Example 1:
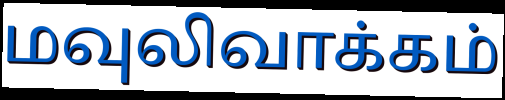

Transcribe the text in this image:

மவுலிவாக்கம்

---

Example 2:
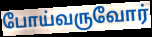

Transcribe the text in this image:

போய்வருவோர்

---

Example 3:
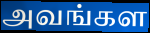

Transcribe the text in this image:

அவங்கள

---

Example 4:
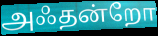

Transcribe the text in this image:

அஃதன்றோ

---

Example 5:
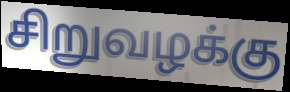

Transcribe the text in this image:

சிறுவழக்கு